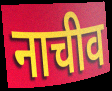
नाचीव